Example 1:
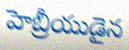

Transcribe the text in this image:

హెబ్రీయుడైన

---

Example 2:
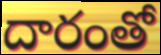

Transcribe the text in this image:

దారంతో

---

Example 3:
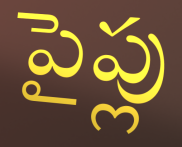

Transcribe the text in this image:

పైప్లు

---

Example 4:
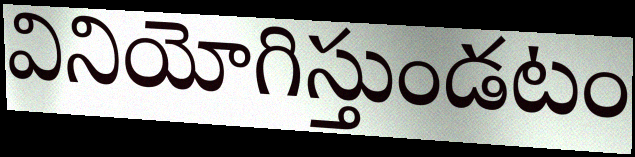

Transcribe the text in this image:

వినియోగిస్తుండటం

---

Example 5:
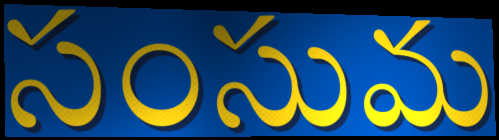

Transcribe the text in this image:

సంసుమ